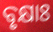
ବୃକ୍ଷାଃ